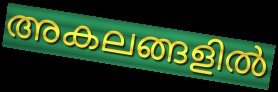
അകലങ്ങളിൽ